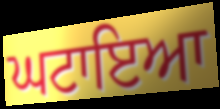
ਘਟਾਇਆ